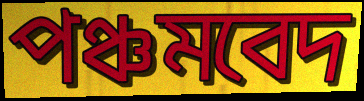
পঞ্চমবেদ